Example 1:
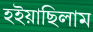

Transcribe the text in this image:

হইয়াছিলাম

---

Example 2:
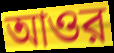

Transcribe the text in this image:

আওর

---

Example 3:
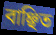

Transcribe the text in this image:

বাঞ্ছিত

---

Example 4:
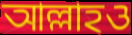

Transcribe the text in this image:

আল্লাহও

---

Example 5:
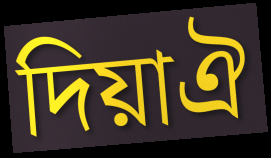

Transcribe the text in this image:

দিয়াঐ